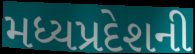
મધ્યપ્રદેશની